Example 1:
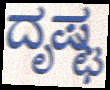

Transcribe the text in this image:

ದೃಷ್ಟ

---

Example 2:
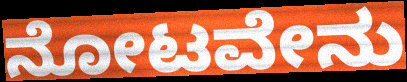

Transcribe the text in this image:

ನೋಟವೇನು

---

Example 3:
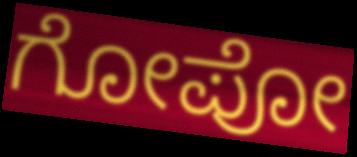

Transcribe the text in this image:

ಗೋಪೋ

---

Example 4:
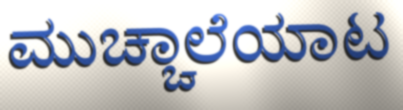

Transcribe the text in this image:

ಮುಚ್ಚಾಲೆಯಾಟ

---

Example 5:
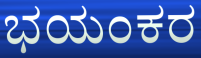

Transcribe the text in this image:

ಭಯಂಕರ